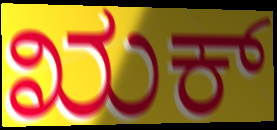
ಋಕ್